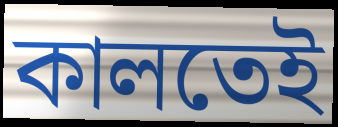
কালতেই